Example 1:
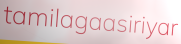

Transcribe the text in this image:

tamilagaasiriyar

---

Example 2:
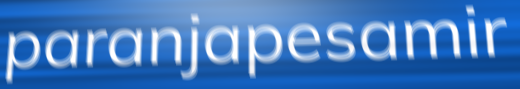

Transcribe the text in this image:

paranjapesamir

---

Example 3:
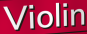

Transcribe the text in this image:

Violin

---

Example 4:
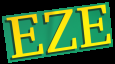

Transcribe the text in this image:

EZE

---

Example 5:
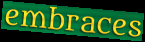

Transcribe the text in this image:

embraces